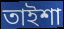
তাইশা